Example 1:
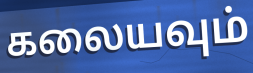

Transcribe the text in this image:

கலையவும்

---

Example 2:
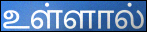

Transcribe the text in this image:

உள்ளால்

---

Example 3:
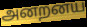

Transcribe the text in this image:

அனறனய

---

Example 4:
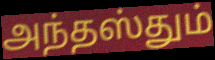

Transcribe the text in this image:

அந்தஸ்தும்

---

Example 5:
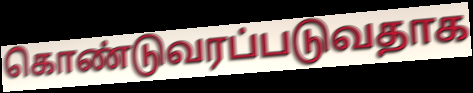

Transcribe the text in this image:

கொண்டுவரப்படுவதாக